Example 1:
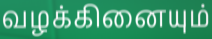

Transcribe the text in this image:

வழக்கினையும்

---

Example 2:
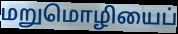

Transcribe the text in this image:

மறுமொழியைப்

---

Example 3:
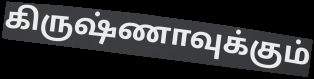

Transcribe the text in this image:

கிருஷ்ணாவுக்கும்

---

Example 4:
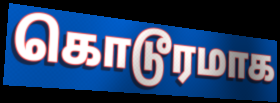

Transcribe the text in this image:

கொடூரமாக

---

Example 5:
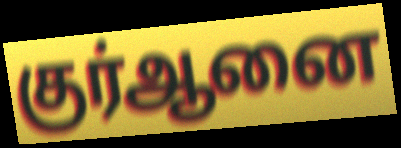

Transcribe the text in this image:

குர்ஆனை